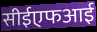
सीईएफआई